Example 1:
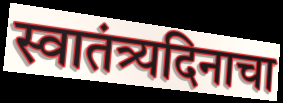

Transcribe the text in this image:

स्वातंत्र्यदिनाचा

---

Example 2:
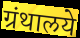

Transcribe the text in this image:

ग्रंथालये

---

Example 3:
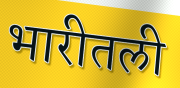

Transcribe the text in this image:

भारीतली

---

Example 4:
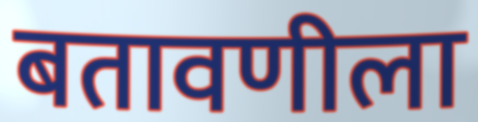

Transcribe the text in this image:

बतावणीला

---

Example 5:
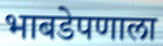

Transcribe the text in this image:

भाबडेपणाला